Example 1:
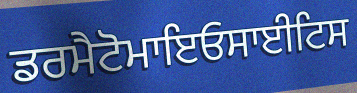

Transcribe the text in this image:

ਡਰਮੈਟੋਮਾਇਓਸਾਈਟਿਸ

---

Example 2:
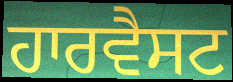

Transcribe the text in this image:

ਹਾਰਵੈਸਟ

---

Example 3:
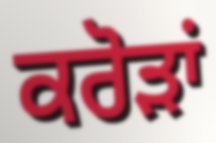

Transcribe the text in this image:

ਕਰੋੜਾਂ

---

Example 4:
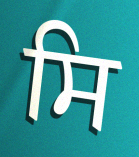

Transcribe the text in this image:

ਸਿ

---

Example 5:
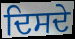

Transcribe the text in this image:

ਦਿਸਦੇ